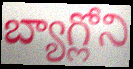
బ్యాగ్లోని